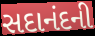
સદાનંદની